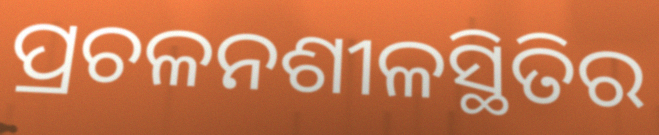
ପ୍ରଚଳନଶୀଳସ୍ଥିତିର